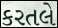
કરતલે